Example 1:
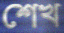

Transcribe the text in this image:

শেখ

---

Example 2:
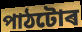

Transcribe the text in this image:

পাঠটোৰ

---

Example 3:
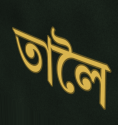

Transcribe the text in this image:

তালৈ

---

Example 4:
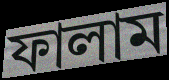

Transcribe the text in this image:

ফালাম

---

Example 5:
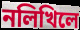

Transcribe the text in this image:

নলিখিলে